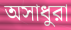
অসাধুরা